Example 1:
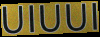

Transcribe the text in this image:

UIUUI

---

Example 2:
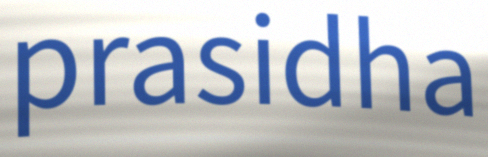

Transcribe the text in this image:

prasidha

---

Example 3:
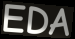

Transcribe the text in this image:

EDA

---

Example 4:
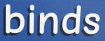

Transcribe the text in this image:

binds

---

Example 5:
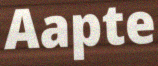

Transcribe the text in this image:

Aapte